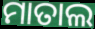
ମାତାଲ